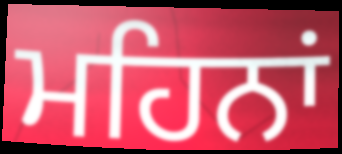
ਮਹਿਨਾਂ